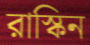
রাস্কিন